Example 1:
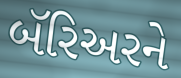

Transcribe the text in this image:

બૅરિઅરને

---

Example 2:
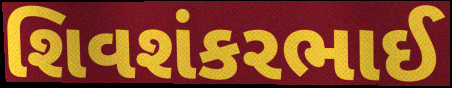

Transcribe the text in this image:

શિવશંકરભાઈ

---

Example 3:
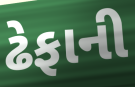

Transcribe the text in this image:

ઢેફાની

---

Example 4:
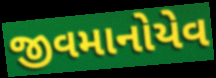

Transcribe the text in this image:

જીવમાનોયેવ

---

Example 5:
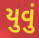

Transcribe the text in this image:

યુવું